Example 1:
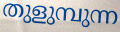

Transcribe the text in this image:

തുളുമ്പുന്ന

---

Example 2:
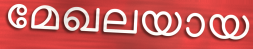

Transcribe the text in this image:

മേഖലയായ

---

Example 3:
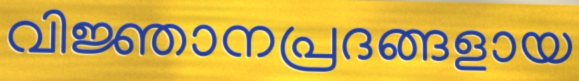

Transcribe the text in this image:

വിജ്ഞാനപ്രദങ്ങളായ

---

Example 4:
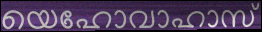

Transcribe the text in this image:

യെഹോവാഹാസ്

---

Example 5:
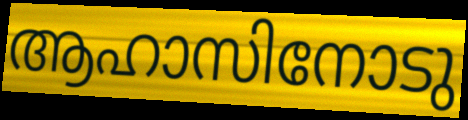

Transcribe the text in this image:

ആഹാസിനോടു